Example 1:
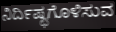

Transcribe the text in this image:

ನಿರ್ದಿಷ್ಟಗೊಳಿಸುವ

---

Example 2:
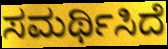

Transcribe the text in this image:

ಸಮರ್ಥಿಸಿದೆ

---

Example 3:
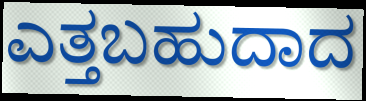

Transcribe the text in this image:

ಎತ್ತಬಹುದಾದ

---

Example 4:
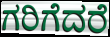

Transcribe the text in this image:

ಗರಿಗೆದರೆ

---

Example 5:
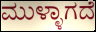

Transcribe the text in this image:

ಮುಳ್ಳಾಗದೆ